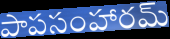
పాపసంహారమ్